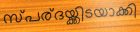
സ്പര്ദയ്ക്കിടയാക്കി